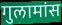
गुलामांस